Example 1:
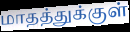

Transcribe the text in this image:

மாதத்துக்குள்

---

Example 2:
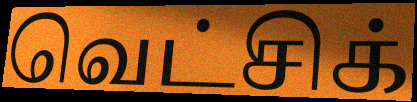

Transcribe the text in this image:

வெட்சிக்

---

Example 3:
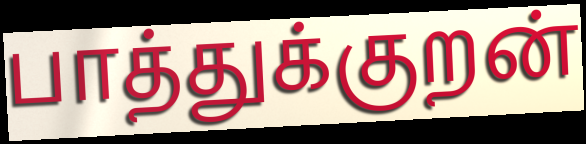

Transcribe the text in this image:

பாத்துக்குறன்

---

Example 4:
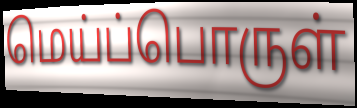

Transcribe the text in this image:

மெய்ப்பொருள்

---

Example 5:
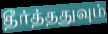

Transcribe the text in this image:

தீர்த்ததுவும்